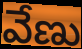
వేణు